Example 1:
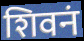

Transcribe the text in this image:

शिवनं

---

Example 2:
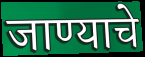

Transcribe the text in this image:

जाण्याचे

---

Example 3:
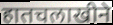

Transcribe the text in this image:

हातचलाखीने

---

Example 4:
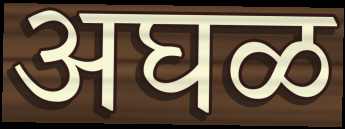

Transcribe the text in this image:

अघळ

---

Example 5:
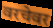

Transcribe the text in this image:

वरचेवर